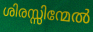
ശിരസ്സിന്മേൽ